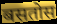
बसतोस